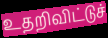
உதறிவிட்டுச்